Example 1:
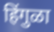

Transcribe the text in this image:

हिंगुळा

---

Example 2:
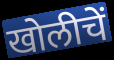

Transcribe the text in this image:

खोलीचें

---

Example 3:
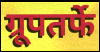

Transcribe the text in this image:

ग्रूपतर्फे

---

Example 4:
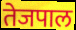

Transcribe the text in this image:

तेजपाल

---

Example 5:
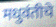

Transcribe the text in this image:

मधुवंतीचे